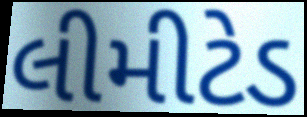
લીમીટેડ